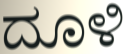
ದೂಳಿ